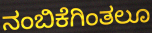
ನಂಬಿಕೆಗಿಂತಲೂ